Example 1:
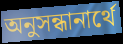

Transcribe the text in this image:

অনুসন্ধানার্থে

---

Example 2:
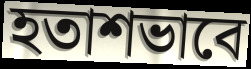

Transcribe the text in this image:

হতাশভাবে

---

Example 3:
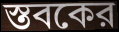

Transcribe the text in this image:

স্তবকের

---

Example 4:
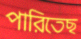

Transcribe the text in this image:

পারিতেছ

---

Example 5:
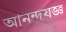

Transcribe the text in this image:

আনন্দযজ্ঞ